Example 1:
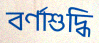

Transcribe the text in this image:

বর্ণাশুদ্ধি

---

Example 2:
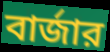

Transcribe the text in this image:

বার্জার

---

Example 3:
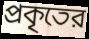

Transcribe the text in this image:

প্রকৃতের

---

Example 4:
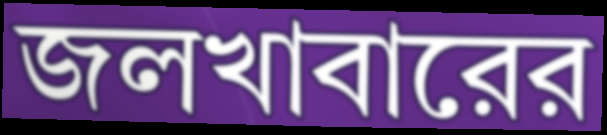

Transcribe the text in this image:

জলখাবারের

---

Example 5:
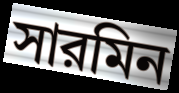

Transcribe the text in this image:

সারমিন